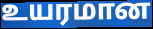
உயரமான